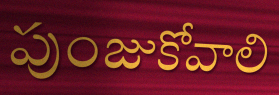
పుంజుకోవాలి